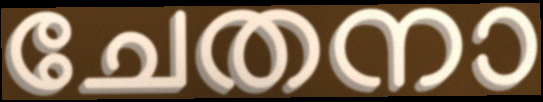
ചേതനാ